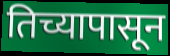
तिच्यापासून